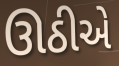
ઊઠીએ